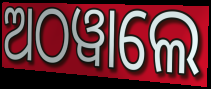
ଅଠୱାଲେ